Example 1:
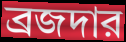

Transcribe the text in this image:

ব্রজদার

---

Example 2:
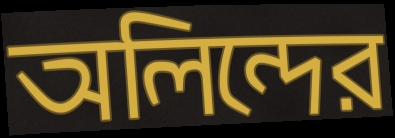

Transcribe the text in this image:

অলিন্দের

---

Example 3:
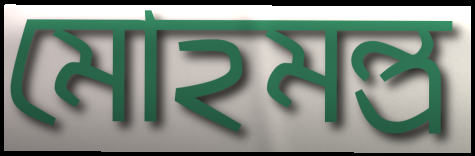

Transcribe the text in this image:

মোহমন্ত্র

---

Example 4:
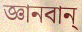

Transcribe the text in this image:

জ্ঞানবান্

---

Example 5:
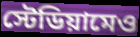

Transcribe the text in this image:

স্টেডিয়ামেও